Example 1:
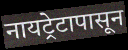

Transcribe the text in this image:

नायट्रेटापासून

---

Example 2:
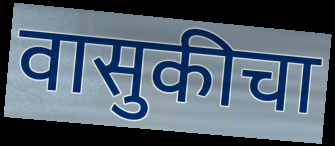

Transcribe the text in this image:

वासुकीचा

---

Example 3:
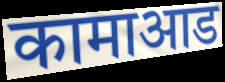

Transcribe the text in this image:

कामाआड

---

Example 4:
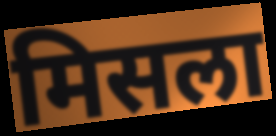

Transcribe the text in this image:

मिसला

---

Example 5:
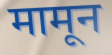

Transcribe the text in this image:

मामून